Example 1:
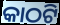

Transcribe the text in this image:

କାଠଟି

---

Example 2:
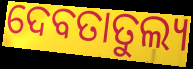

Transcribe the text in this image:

ଦେବତାତୁଲ୍ୟ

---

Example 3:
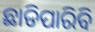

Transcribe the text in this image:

ଛାଡିପାରିବି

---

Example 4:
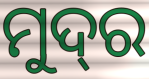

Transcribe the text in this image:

ମୁଦ୍‌ର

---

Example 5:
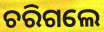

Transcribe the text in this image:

ଚରିଗଲେ